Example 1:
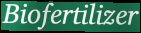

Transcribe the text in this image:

Biofertilizer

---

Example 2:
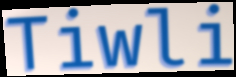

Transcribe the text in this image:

Tiwli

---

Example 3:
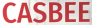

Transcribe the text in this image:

CASBEE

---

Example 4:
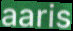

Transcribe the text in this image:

aaris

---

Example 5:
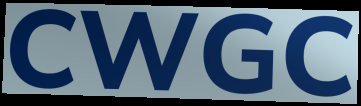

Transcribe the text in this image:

CWGC